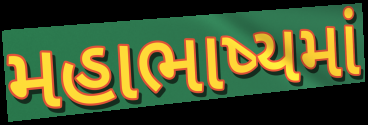
મહાભાષ્યમાં